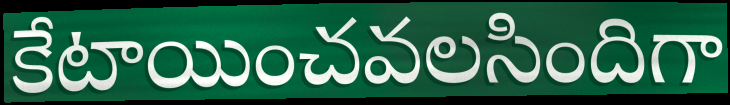
కేటాయించవలసిందిగా